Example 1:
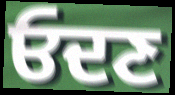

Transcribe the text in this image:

ਓਦਣ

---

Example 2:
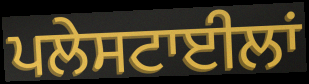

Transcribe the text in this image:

ਪਲੇਸਟਾਈਲਾਂ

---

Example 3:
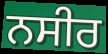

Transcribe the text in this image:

ਨਸੀਰ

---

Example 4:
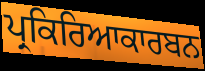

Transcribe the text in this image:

ਪ੍ਰਕਿਰਿਆਕਾਰਬਨ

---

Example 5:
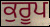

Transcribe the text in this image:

ਕੁਰੂਪ